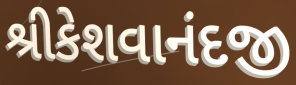
શ્રીકેશવાનંદજી